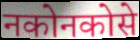
नकोनकोसे